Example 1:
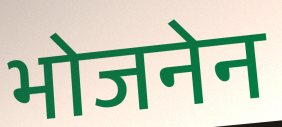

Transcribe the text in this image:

भोजनेन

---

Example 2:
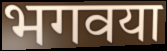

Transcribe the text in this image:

भगवया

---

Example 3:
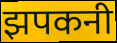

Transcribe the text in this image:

झपकनी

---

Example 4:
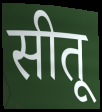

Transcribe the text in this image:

सीतू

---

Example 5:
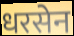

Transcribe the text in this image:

धरसेन